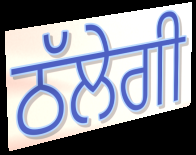
ਠੱਲੇਗੀ